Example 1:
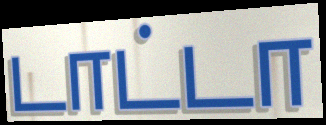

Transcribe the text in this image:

டாட்டா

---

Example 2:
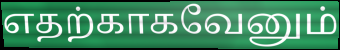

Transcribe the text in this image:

எதற்காகவேனும்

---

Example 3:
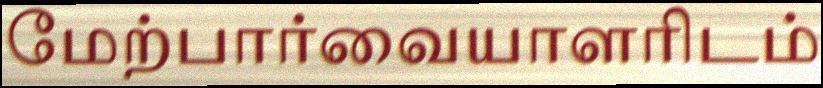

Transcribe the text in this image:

மேற்பார்வையாளரிடம்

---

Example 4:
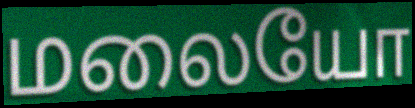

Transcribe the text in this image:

மலையோ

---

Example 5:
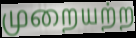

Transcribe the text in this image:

முறையற்ற